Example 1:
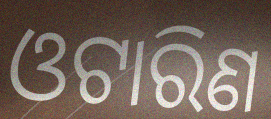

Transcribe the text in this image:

ଓଟାରିଣ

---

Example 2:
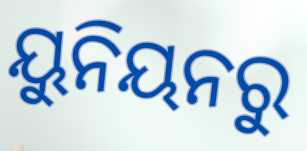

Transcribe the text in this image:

ୟୁନିୟନରୁ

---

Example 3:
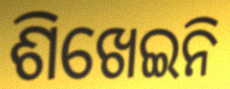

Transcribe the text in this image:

ଶିଖେଇନି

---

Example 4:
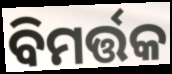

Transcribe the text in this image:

ବିମର୍ତ୍ତକ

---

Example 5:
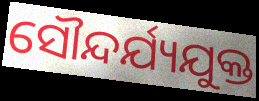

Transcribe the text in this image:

ସୌନ୍ଦର୍ଯ୍ୟଯୁକ୍ତ